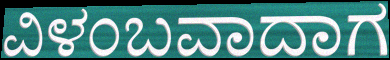
ವಿಳಂಬವಾದಾಗ